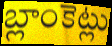
బ్లాంకెట్లు